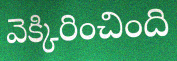
వెక్కిరించింది